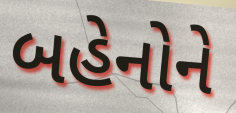
બહેનોને